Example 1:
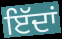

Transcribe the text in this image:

ਇੱਦਾਂ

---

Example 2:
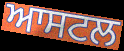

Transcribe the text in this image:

ਆਸਟਲ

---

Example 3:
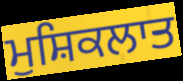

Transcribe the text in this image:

ਮੁਸ਼ਿਕਲਾਤ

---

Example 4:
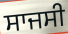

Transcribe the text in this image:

ਸਾਜਸੀ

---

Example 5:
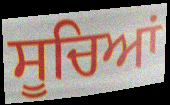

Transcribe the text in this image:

ਸੂਚਿਆਂ